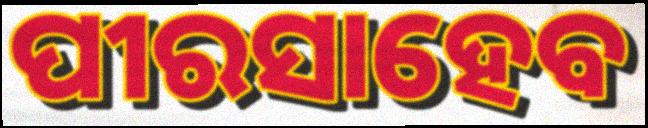
ପୀରସାହେବ